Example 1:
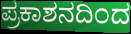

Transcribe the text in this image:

ಪ್ರಕಾಶನದಿಂದ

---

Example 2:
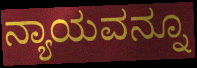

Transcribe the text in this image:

ನ್ಯಾಯವನ್ನೂ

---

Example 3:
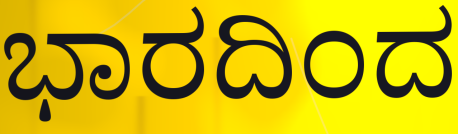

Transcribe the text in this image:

ಭಾರದಿಂದ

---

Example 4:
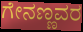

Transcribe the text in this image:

ಗೇನಣ್ಣವರ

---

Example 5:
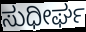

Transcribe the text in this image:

ಸುಧೀರ್ಘ